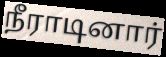
நீராடினார்